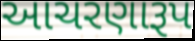
આચરણારૂપ